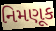
નિમણૂક